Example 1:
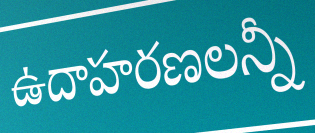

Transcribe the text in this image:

ఉదాహరణలన్నీ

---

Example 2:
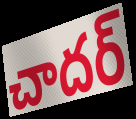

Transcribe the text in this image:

చాదర్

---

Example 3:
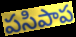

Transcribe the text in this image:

పసిపాప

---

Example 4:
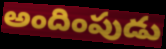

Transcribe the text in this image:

అందింపుడు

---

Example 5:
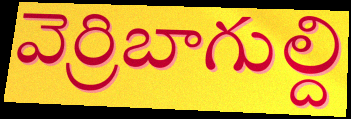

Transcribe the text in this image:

వెర్రిబాగుల్ది